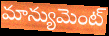
మాన్యుమెంట్